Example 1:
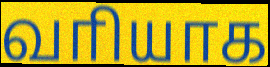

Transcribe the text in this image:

வரியாக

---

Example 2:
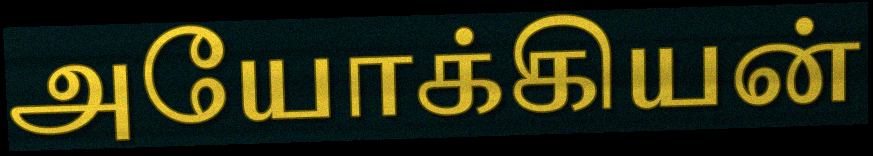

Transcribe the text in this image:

அயோக்கியன்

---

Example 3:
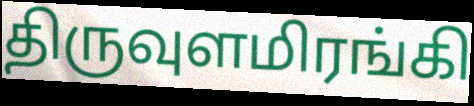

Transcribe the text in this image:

திருவுளமிரங்கி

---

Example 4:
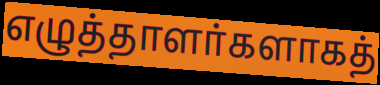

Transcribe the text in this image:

எழுத்தாளர்களாகத்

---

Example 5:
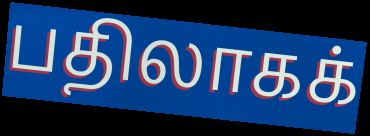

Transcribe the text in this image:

பதிலாகக்